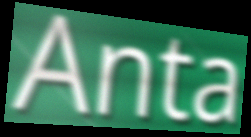
Anta